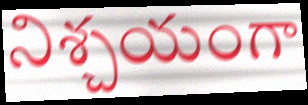
నిశ్చయంగా